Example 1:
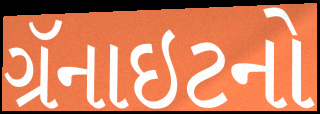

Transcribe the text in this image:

ગ્રૅનાઇટનો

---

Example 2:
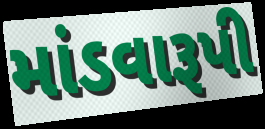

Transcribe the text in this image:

માંડવારૂપી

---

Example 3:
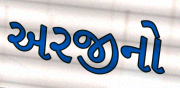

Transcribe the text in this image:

અરજીનો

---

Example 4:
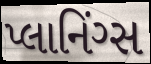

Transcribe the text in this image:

પ્લાનિંગ્સ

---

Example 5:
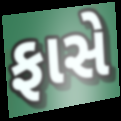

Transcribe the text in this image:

ફાસે